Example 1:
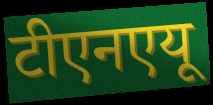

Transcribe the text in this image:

टीएनएयू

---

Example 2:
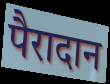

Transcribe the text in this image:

पैरादान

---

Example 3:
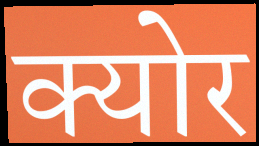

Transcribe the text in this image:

क्योर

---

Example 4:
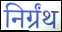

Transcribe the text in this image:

निर्ग्रंथ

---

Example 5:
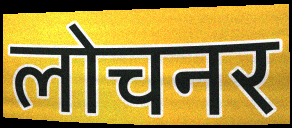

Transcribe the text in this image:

लोचनर